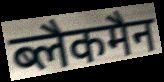
ब्लैकमैन